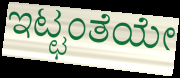
ಇಟ್ಟಂತೆಯೇ